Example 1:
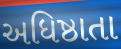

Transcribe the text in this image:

અધિષ્ઠાતા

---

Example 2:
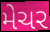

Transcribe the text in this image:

મેચર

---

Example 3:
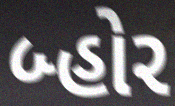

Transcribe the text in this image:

બ્હોર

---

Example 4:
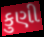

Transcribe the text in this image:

કુણી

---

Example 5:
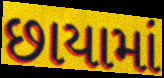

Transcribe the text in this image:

છાયામાં